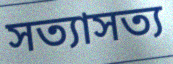
সত্যাসত্য